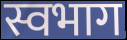
स्वभाग